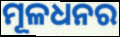
ମୂଳଧନର